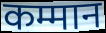
कम्मान